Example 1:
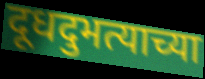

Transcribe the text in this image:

दूधदुभत्याच्या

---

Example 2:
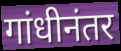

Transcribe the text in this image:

गांधीनंतर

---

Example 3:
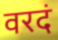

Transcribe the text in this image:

वरदं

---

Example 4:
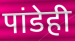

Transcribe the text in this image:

पांडेही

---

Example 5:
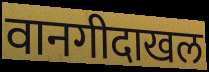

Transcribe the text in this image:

वानगीदाखल